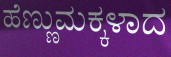
ಹೆಣ್ಣುಮಕ್ಕಳಾದ